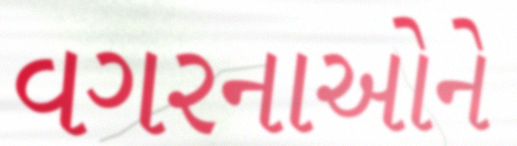
વગરનાઓને